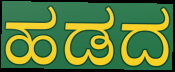
ಹಡದ